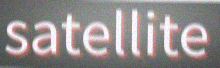
satellite